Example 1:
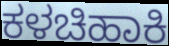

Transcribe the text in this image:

ಕಳಚಿಹಾಕಿ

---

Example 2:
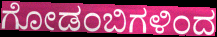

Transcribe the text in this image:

ಗೋಡಂಬಿಗಳಿಂದ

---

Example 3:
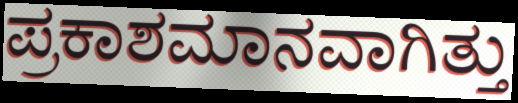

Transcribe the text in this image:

ಪ್ರಕಾಶಮಾನವಾಗಿತ್ತು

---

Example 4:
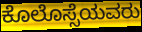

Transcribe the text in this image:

ಕೊಲೊಸ್ಸೆಯವರು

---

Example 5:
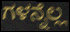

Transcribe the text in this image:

ಗಳನ್ನೆಲ್ಲ